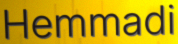
Hemmadi